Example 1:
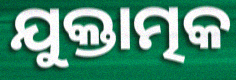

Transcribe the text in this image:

ଯୁକ୍ତାତ୍ମକ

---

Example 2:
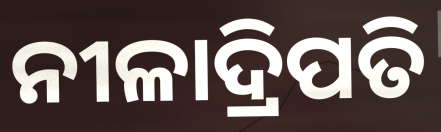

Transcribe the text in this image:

ନୀଳାଦ୍ରିପତି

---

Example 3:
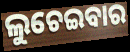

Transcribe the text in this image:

ଲୁଚେଇବାର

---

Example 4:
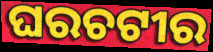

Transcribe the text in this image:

ଘରଚଟୀର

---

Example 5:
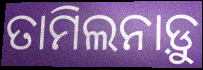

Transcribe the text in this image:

ତାମିଲନାଡ଼ୁ